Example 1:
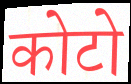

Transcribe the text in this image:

कोटो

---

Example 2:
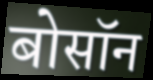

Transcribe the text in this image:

बोसॉन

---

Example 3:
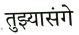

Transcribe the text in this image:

तुझ्यासंगे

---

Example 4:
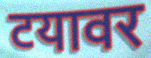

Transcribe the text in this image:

टयावर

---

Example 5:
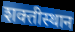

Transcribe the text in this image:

शक्तीस्थान